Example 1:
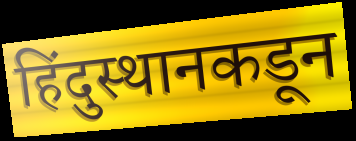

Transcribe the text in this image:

हिंदुस्थानकडून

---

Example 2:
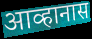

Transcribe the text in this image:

आव्हानास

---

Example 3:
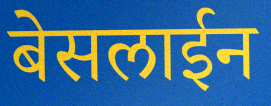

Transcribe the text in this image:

बेसलाईन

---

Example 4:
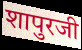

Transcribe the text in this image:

शापुरजी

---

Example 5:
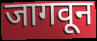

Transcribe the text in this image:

जागवून